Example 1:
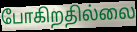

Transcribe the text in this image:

போகிறதில்லை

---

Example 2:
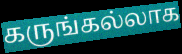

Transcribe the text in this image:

கருங்கல்லாக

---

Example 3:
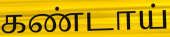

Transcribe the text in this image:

கண்டாய்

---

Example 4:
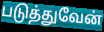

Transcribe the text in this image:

படுத்துவேன்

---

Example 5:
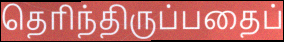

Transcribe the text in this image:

தெரிந்திருப்பதைப்